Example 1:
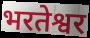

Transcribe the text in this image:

भरतेश्वर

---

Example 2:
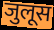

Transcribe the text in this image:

जुलूस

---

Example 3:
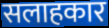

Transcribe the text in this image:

सलाहकार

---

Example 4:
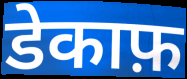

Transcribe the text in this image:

डेकाफ़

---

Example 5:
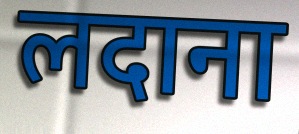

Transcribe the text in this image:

लदाना